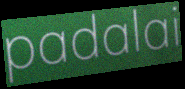
padalai